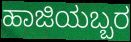
ಹಾಜಿಯಬ್ಬರ